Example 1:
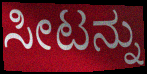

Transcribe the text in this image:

ಸೀಟನ್ನು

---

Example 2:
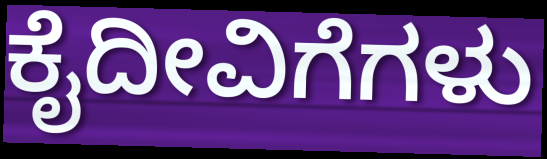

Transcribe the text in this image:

ಕೈದೀವಿಗೆಗಳು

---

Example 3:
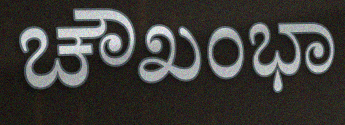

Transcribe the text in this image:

ಚೌಖಂಭಾ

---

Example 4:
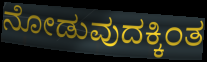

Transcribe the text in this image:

ನೋಡುವುದಕ್ಕಿಂತ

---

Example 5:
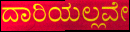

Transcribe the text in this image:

ದಾರಿಯಲ್ಲವೇ